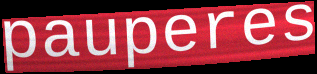
pauperes